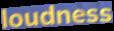
loudness